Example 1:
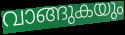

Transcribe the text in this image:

വാങ്ങുകയും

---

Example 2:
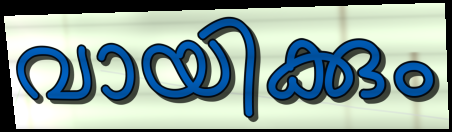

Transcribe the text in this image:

വായിക്കും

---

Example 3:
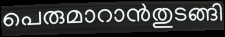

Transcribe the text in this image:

പെരുമാറാൻതുടങ്ങി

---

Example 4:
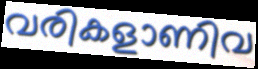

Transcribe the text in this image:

വരികളാണിവ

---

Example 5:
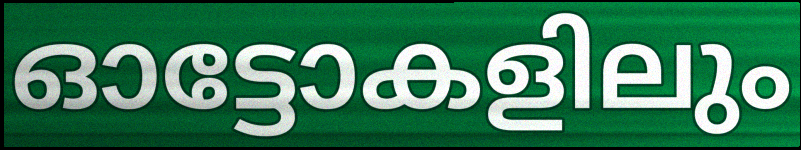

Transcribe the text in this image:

ഓട്ടോകളിലും